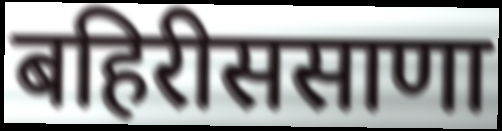
बहिरीससाणा